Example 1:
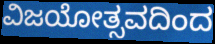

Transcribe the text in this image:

ವಿಜಯೋತ್ಸವದಿಂದ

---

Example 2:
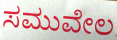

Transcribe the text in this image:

ಸಮುವೇಲ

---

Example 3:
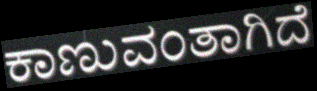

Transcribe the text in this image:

ಕಾಣುವಂತಾಗಿದೆ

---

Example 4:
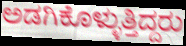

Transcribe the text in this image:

ಅಡಗಿಕೊಳ್ಳುತ್ತಿದ್ದರು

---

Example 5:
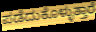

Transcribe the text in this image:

ಪಡೆದುಕೊಳ್ಳುತ್ತಾರೆ